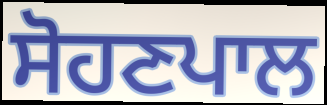
ਸੋਹਣਪਾਲ